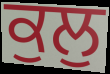
ਕੁਲੁ